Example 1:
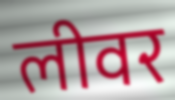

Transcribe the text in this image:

लीवर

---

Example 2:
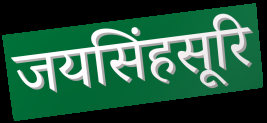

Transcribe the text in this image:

जयसिंहसूरि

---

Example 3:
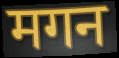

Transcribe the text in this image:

मगन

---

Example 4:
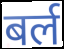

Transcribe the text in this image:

बर्ल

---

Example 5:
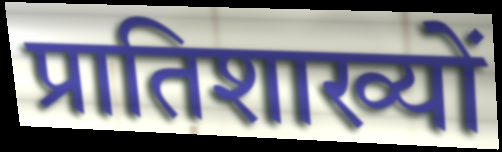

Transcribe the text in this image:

प्रातिशाख्यों